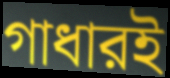
গাধারই